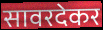
सावरदेकर